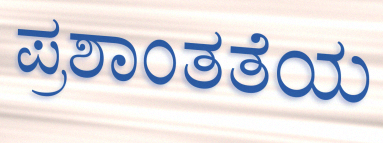
ಪ್ರಶಾಂತತೆಯ